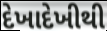
દેખાદેખીથી